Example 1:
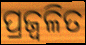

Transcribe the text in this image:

ପ୍ରଜ୍ୱଳିତ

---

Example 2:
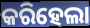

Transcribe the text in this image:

କରିହେଲା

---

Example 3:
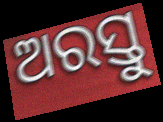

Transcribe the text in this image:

ଅରସ୍ତୁ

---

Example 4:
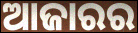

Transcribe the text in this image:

ଆଜାରର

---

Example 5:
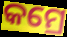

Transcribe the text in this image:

କମ୍ରେ